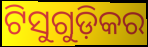
ଟିସୁଗୁଡ଼ିକର